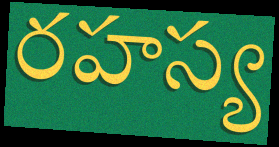
రహస్య